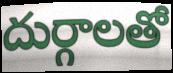
దుర్గాలతో